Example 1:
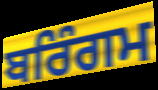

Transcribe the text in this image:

ਬਰਿੰਗਮ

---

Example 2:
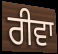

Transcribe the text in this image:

ਰੀਵਾ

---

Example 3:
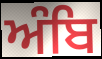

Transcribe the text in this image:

ਅੰਬਿ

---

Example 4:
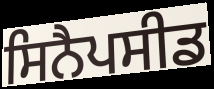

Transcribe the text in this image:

ਸਿਨੈਪਸੀਡ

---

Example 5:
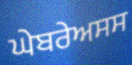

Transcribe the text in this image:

ਘੇਬਰੇਅਸਸ